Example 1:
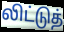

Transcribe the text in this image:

லிட்டுத்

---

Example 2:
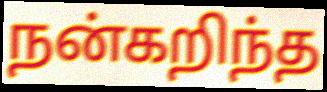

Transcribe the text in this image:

நன்கறிந்த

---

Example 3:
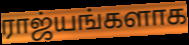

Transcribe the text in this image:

ராஜ்யங்களாக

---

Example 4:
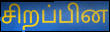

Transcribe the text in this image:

சிறப்பின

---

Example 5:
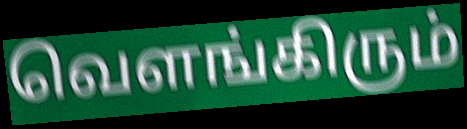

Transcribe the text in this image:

வெளங்கிரும்